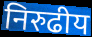
निरुढीय